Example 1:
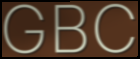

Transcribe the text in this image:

GBC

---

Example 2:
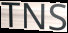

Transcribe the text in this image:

TNS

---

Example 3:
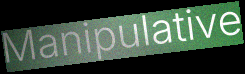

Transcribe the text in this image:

Manipulative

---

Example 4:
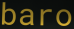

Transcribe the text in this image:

baro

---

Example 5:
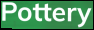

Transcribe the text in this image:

Pottery